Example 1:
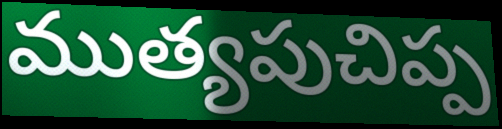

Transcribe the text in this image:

ముత్యపుచిప్ప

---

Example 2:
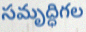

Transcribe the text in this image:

సమృద్ధిగల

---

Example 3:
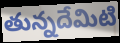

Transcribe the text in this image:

తున్నదేమిటి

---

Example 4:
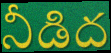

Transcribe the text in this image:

నీడిద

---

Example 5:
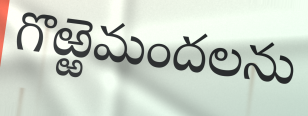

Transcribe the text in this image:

గొఱ్ఱెమందలను